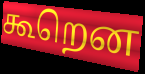
கூறென